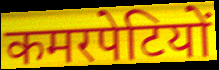
कमरपेटियों